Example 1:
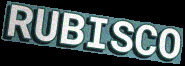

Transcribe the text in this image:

RUBISCO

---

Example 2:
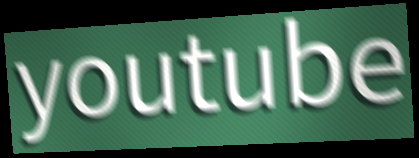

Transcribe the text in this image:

youtube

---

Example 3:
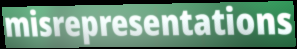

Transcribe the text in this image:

misrepresentations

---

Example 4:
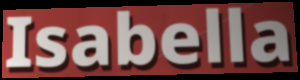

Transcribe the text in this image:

Isabella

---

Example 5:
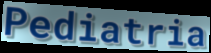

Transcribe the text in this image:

Pediatria